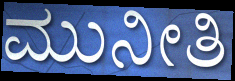
ಮುನೀತಿ